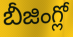
బీజింగ్లో